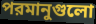
পরমানুগুলো